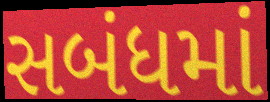
સબંધમાં